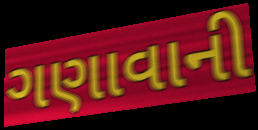
ગણાવાની